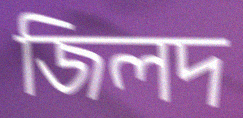
জিলদ